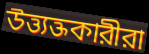
উত্ত্যক্তকারীরা